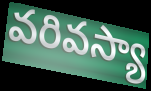
వరివస్యా